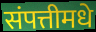
संपत्तीमधे